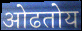
ओढतोय